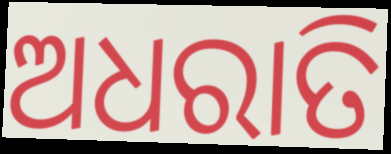
ଅଧରାତି